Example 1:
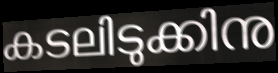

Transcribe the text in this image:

കടലിടുക്കിനു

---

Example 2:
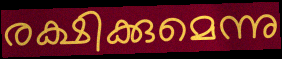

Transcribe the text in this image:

രക്ഷിക്കുമെന്നു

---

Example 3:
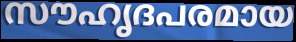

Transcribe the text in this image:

സൗഹൃദപരമായ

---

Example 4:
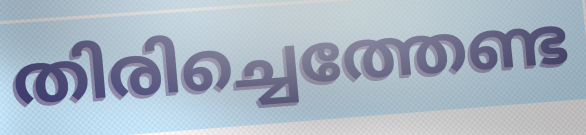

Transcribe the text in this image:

തിരിച്ചെത്തേണ്ട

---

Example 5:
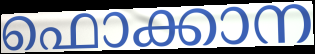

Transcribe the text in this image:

ഫൊക്കാന